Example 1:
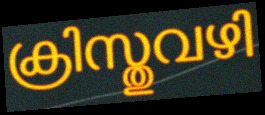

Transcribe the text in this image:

ക്രിസ്തുവഴി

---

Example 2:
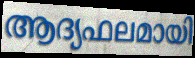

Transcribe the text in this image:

ആദ്യഫലമായി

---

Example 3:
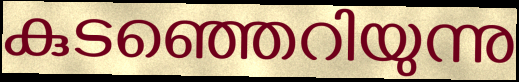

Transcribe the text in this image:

കുടഞ്ഞെറിയുന്നു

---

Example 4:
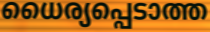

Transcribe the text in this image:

ധൈര്യപ്പെടാത്ത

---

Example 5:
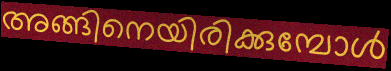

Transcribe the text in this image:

അങ്ങിനെയിരിക്കുമ്പോൾ